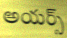
అయర్స్